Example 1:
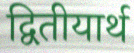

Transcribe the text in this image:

द्वितीयार्थ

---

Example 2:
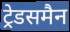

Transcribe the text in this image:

ट्रेडसमैन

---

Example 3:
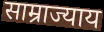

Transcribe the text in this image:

साम्राज्याय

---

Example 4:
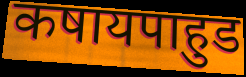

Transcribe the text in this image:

कषायपाहुड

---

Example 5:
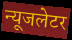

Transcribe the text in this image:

न्यूजलेटर